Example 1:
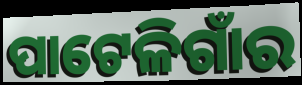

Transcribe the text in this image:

ପାଟେଳିଗାଁର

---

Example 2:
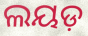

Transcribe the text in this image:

ଲୟଡ଼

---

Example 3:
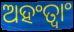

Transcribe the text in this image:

ଅହଂତ୍ୱାଂ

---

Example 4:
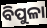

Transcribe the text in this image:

ବିପୁଳା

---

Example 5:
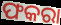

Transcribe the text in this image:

ଫକରା